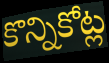
కొన్నికోట్ల